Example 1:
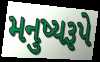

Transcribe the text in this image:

મનુષ્યરૂપે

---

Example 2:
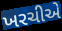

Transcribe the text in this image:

ખરચીએ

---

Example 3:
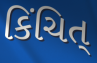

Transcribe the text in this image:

કિંચિત્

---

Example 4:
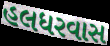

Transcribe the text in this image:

હલધરવાસ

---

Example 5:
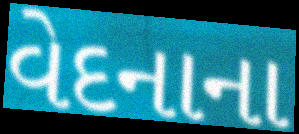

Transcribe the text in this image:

વેદનાના